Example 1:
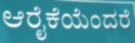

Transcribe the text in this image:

ಆರೈಕೆಯೆಂದರೆ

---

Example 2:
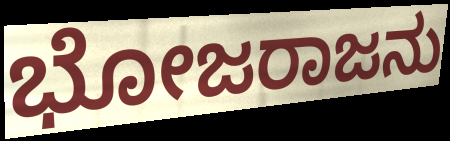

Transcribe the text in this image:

ಭೋಜರಾಜನು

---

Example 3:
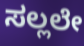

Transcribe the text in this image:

ಸಲ್ಲಲೇ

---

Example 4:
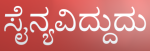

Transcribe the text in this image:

ಸೈನ್ಯವಿದ್ದುದು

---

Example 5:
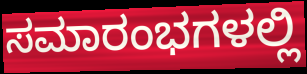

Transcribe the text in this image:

ಸಮಾರಂಭಗಳಲ್ಲಿ